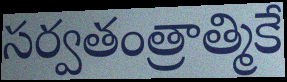
సర్వతంత్రాత్మికే